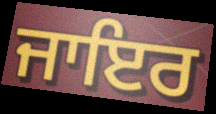
ਜਾਇਰ